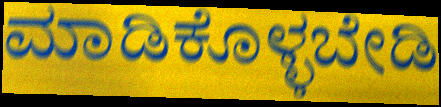
ಮಾಡಿಕೊಳ್ಳಬೇಡಿ